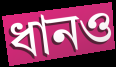
ধানও